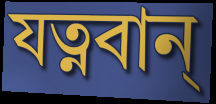
যত্নবান্